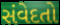
સંવેદતો